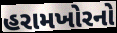
હરામખોરનો